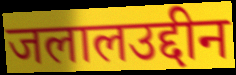
जलालउद्दीन